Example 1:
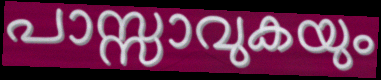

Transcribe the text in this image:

പാസ്സാവുകയും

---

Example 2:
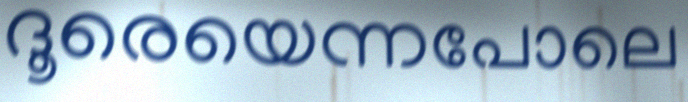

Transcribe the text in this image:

ദൂരെയെന്നപോലെ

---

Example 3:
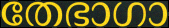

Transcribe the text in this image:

തേഭാഗാ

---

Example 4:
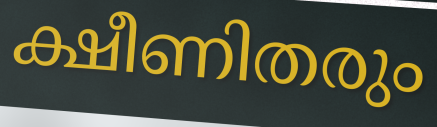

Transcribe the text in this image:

ക്ഷീണിതരും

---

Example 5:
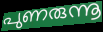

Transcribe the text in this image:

പുണരുന്നൂ